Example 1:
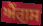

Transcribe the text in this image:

ਐਂਗੁਸ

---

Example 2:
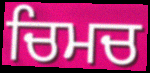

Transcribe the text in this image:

ਚਿਮਚ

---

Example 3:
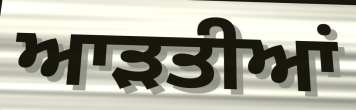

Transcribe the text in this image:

ਆੜਤੀਆਂ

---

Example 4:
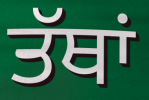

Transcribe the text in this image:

ਤੱਥਾਂ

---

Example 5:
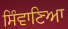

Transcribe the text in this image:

ਸਿੰਵਾਣਿਆ